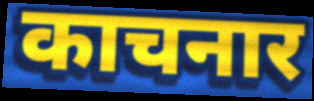
काचनार